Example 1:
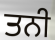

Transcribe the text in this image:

ਤਨੀ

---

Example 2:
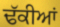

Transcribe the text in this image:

ਢੱਕੀਆਂ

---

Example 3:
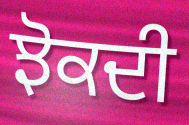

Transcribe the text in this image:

ਝੋਕਦੀ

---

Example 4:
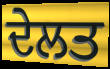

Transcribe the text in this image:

ਦੇਲਤ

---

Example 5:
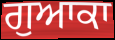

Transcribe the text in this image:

ਗੁਆਕਾ